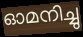
ഓമനിച്ചു